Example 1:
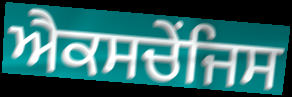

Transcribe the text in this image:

ਐਕਸਚੇਂਜਿਸ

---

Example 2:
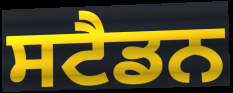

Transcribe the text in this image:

ਸਟੈਡਨ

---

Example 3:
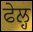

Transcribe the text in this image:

ਫੇਲ੍ਹ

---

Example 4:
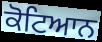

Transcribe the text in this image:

ਕੋਟਿਆਨ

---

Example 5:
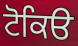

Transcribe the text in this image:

ਟੋਕਿੳ